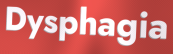
Dysphagia